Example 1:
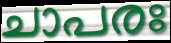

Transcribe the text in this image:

ചാപരഃ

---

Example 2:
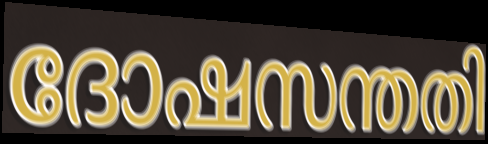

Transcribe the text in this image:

ദോഷസന്തതി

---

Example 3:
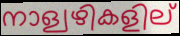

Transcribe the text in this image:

നാള്വഴികളില്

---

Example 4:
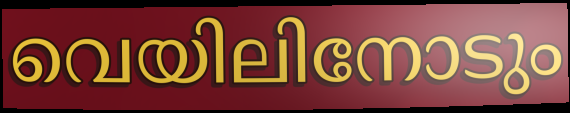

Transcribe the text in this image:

വെയിലിനോടും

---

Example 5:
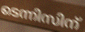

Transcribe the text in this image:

ടെന്നിസിന്